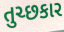
તુચ્છકાર